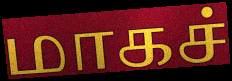
மாகச்